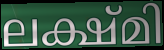
ലക്ഷ്മി